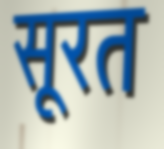
सूरत